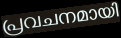
പ്രവചനമായി